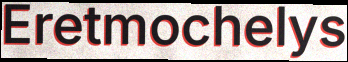
Eretmochelys